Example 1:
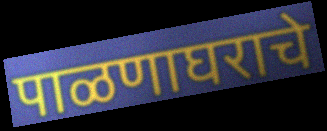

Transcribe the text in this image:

पाळणाघराचे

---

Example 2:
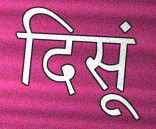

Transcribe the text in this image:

दिसूं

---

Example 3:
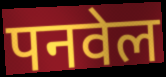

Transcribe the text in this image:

पनवेल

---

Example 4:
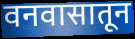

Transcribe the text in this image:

वनवासातून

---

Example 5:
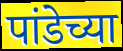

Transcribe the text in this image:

पांडेच्या